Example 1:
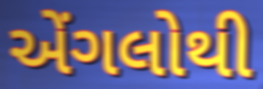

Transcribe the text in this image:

એંગલોથી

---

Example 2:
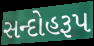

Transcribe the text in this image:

સન્દોહરૂપ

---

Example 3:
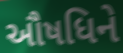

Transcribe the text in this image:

ઔષધિને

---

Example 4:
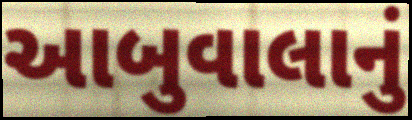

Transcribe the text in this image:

આબુવાલાનું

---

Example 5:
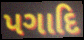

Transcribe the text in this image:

પગાદિ